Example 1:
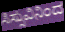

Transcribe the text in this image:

ಸಿಸ್ಸುವಿನಿಂದ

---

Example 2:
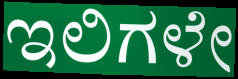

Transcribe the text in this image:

ಇಲಿಗಳೇ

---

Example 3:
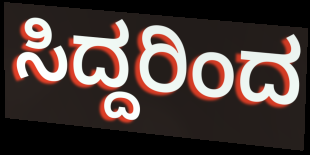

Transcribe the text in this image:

ಸಿದ್ದರಿಂದ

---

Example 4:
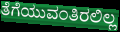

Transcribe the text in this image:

ತೆಗೆಯುವಂತಿರಲಿಲ್ಲ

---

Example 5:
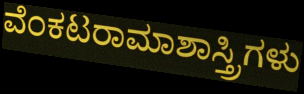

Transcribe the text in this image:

ವೆಂಕಟರಾಮಾಶಾಸ್ತ್ರಿಗಳು